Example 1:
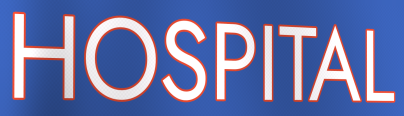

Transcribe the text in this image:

HOSPITAL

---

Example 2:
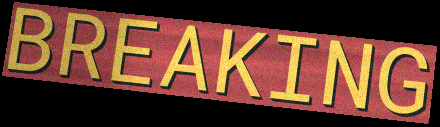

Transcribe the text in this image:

BREAKING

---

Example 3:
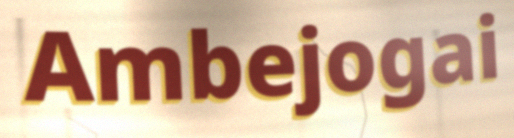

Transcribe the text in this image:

Ambejogai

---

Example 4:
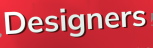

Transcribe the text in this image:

Designers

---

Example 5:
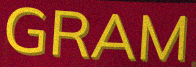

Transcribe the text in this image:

GRAM